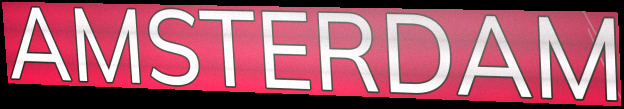
AMSTERDAM